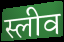
स्लीव